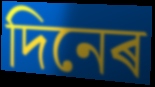
দিনেৰ